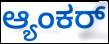
ಆ್ಯಂಕರ್